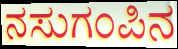
ನಸುಗಂಪಿನ